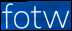
fotw